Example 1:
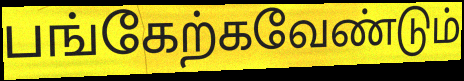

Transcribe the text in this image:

பங்கேற்கவேண்டும்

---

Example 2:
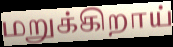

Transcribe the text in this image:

மறுக்கிறாய்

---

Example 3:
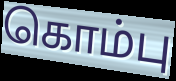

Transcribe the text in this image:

கொம்பு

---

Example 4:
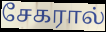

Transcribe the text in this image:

சேகரால்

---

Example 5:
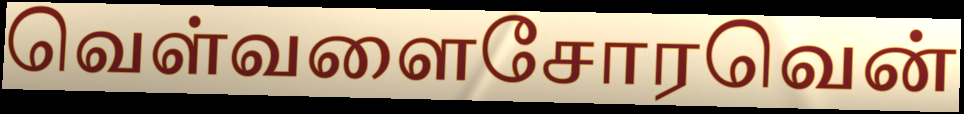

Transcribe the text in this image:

வெள்வளைசோரவென்